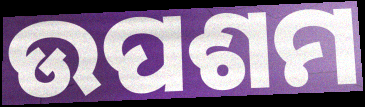
ଉପଶମ